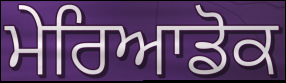
ਮੇਰਿਆਡੋਕ